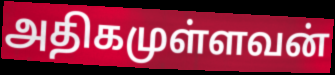
அதிகமுள்ளவன்